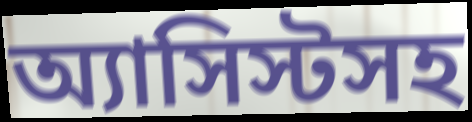
অ্যাসিস্টসহ